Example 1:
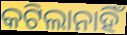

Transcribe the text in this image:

କଟିଲାନାହିଁ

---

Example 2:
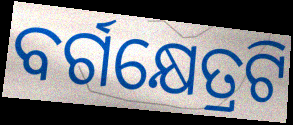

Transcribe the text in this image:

ବର୍ଗକ୍ଷେତ୍ରଟି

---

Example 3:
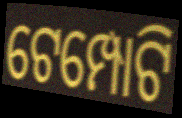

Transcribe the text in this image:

ଟେମ୍ପୋଟି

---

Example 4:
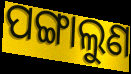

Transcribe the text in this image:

ପଙ୍ଗାଲୁଣ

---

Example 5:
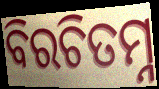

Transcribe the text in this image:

ବିରଚିତମ୍ନ